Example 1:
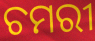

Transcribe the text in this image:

ଚମରୀ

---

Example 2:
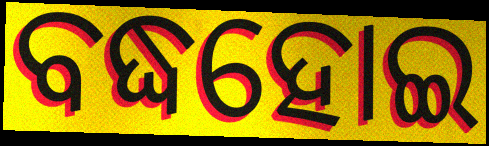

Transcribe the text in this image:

ବଦ୍ଧହୋଇ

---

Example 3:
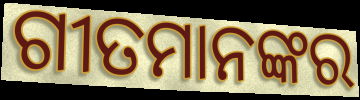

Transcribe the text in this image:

ଗୀତମାନଙ୍କର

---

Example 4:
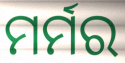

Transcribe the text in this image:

ମର୍ମର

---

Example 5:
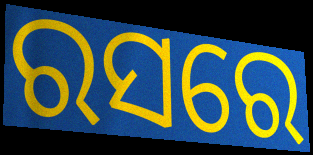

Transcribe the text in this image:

ରସରେ